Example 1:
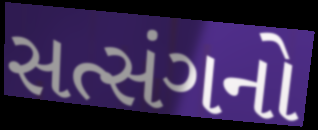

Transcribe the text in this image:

સત્સંગનો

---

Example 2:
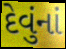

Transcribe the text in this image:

દેવુંનાં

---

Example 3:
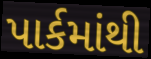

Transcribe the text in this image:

પાર્કમાંથી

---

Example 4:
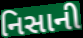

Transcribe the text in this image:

નિસાની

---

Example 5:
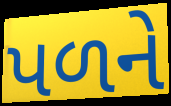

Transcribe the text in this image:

પળને